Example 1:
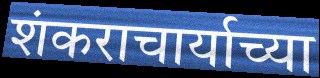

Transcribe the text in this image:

शंकराचार्याच्या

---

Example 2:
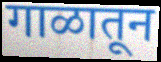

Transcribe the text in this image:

गाळातून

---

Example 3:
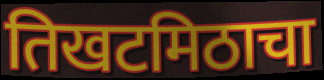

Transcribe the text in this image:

तिखटमिठाचा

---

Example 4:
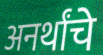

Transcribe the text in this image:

अनर्थांचे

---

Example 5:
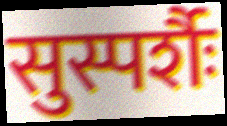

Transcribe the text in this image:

सुस्पर्शैः